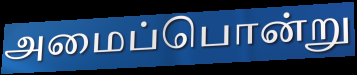
அமைப்பொன்று